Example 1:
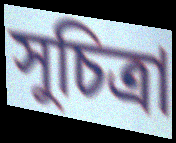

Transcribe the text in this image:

সুচিত্রা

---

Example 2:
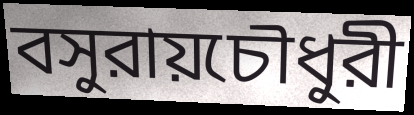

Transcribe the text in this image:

বসুরায়চৌধুরী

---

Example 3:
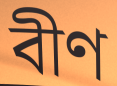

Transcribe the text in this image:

বীণ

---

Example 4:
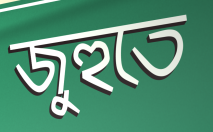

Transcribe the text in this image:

জুহুতে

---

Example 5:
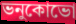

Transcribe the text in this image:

ভনুকোভো